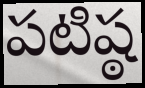
పటిష్ఠ